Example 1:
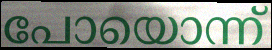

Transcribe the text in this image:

പോയൊന്ന്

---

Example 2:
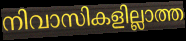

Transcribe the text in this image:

നിവാസികളില്ലാത്ത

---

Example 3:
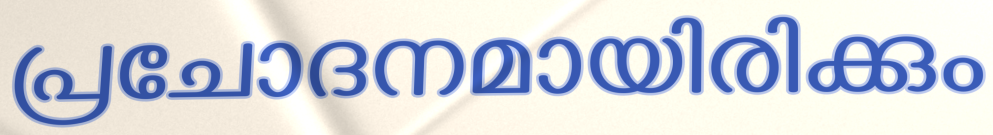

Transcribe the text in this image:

പ്രചോദനമായിരിക്കും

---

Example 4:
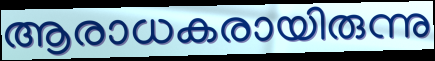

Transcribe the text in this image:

ആരാധകരായിരുന്നു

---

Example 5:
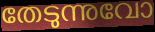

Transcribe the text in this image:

തേടുന്നുവോ